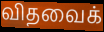
விதவைக்